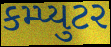
કમ્પ્યુટર